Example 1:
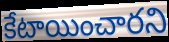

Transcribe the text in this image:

కేటాయించారని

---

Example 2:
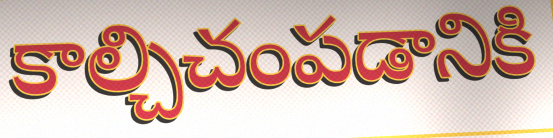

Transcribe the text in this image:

కాల్చిచంపడానికి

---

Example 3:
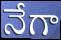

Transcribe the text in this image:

నేగా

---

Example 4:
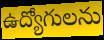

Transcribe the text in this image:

ఉద్యోగులను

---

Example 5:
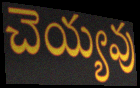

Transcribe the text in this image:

చెయ్యవు